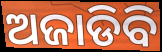
ଅଜାଡିବି